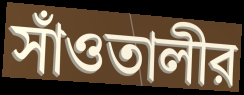
সাঁওতালীর